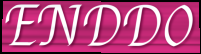
ENDDO